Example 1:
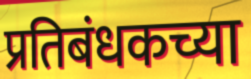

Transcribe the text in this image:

प्रतिबंधकच्या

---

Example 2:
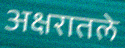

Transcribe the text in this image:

अक्षरातले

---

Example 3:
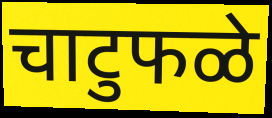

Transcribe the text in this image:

चाटुफळे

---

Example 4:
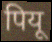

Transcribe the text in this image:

पियू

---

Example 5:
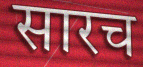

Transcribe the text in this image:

सारच